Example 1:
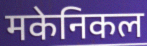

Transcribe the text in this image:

मकेनिकल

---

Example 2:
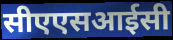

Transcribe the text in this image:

सीएएसआईसी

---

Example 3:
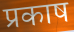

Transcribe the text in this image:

प्रकाष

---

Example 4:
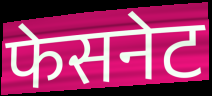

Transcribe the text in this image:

फेसनेट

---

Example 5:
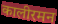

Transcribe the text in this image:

कालीरमन